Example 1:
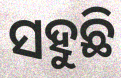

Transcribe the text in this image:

ସହୁଛି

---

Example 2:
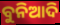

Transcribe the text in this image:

ବୁନିଆଦି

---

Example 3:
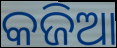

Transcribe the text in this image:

କଜିଆ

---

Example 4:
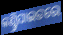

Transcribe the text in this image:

କଣ୍ଟ୍ରିସାଇଡରେ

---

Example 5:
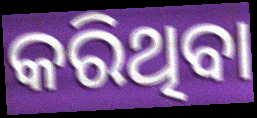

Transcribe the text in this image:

କରିଥିବା